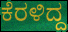
ಕೆರಳಿದ್ದ